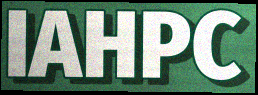
IAHPC